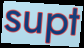
supt